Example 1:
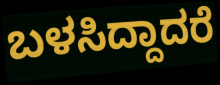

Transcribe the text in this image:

ಬಳಸಿದ್ದಾದರೆ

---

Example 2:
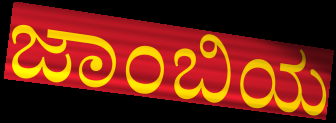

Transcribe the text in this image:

ಜಾಂಬಿಯ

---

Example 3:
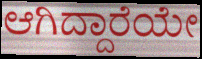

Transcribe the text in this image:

ಆಗಿದ್ದಾರೆಯೇ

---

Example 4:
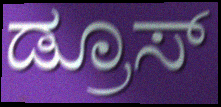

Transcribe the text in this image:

ಡ್ರೂಸ್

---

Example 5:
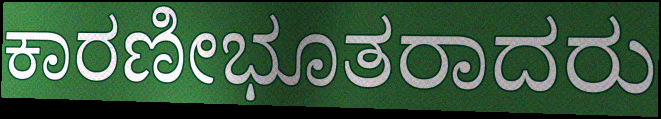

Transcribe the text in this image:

ಕಾರಣೀಭೂತರಾದರು